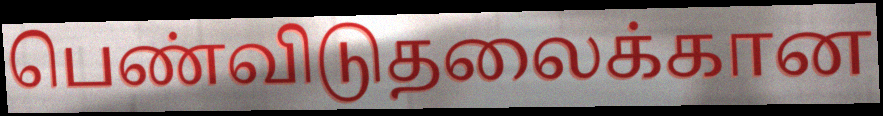
பெண்விடுதலைக்கான